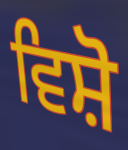
ਵਿਸ਼ੋ